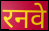
रनवे